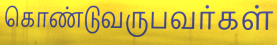
கொண்டுவருபவர்கள்